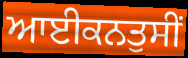
ਆਈਕਨਤੁਸੀਂ